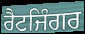
ਰੈਟਜਿੰਗਰ